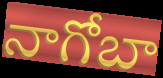
నాగోబా